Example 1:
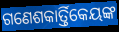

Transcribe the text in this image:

ଗଣେଶକାର୍ତ୍ତିକେୟଙ୍କ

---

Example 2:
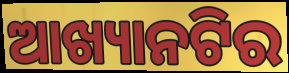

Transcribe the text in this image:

ଆଖ୍ୟାନଟିର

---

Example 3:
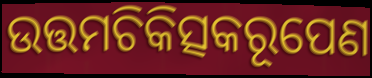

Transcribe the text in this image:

ଉତ୍ତମଚିକିତ୍ସକରୂପେଣ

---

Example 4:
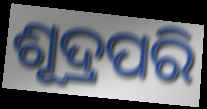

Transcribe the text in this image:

ଶୂଦ୍ରପରି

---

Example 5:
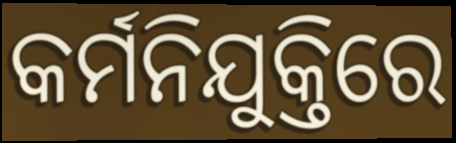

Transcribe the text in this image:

କର୍ମନିଯୁକ୍ତିରେ